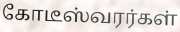
கோடீஸ்வரர்கள்